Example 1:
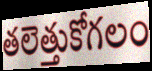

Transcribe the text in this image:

తలెత్తుకోగలం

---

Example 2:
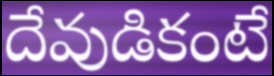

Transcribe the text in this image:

దేవుడికంటే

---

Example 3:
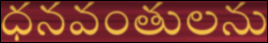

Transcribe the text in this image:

ధనవంతులను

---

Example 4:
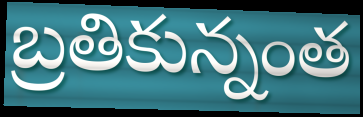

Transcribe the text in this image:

బ్రతికున్నంత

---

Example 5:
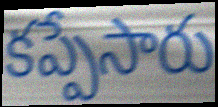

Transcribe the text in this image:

కప్పేసారు